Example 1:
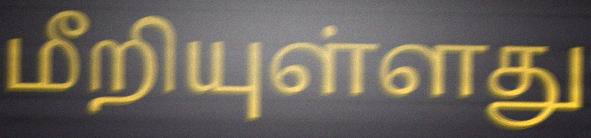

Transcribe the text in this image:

மீறியுள்ளது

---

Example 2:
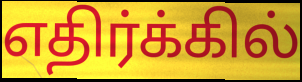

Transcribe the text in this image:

எதிர்க்கில்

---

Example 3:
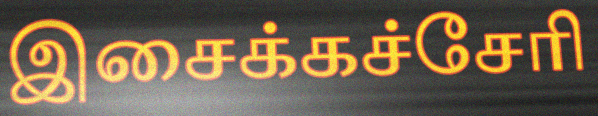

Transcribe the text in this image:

இசைக்கச்சேரி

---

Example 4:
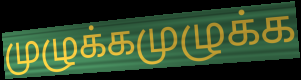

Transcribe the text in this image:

முழுக்கமுழுக்க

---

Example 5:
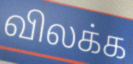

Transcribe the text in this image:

விலக்க